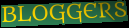
BLOGGERS